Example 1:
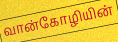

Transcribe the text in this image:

வான்கோழியின்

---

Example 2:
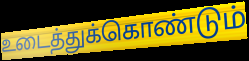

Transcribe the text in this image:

உடைத்துக்கொண்டும்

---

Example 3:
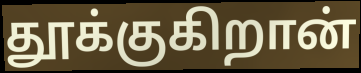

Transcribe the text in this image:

தூக்குகிறான்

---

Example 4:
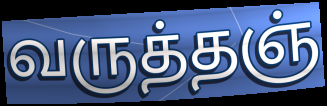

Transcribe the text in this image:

வருத்தஞ்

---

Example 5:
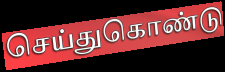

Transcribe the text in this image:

செய்துகொண்டு